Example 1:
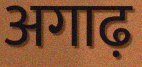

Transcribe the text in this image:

अगाढ़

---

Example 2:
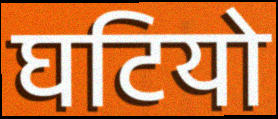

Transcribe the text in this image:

घटियो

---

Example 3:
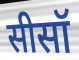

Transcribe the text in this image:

सीसॉ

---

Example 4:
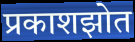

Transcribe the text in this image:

प्रकाशझोत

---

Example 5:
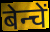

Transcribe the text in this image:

बेन्चें